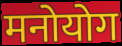
मनोयोग